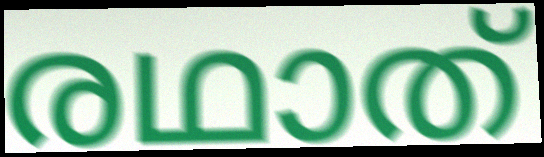
രഥാത്